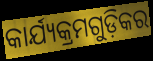
କାର୍ଯ୍ୟକ୍ରମଗୁଡ଼ିକର